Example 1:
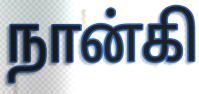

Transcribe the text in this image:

நான்கி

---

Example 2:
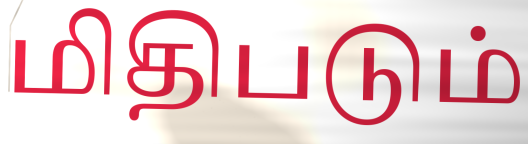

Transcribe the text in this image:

மிதிபடும்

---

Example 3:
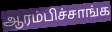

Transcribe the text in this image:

ஆரம்பிச்சாங்க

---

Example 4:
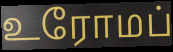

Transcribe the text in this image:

உரோமப்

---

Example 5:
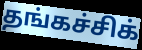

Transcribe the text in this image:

தங்கச்சிக்